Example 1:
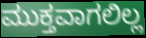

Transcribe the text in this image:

ಮುಕ್ತವಾಗಲಿಲ್ಲ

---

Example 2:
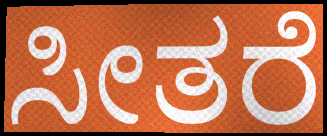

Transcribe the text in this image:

ಸೀತರೆ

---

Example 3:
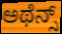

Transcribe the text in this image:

ಅಥೆನ್ಸ್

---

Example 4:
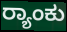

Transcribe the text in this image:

ರ್‍ಯಾಂಕು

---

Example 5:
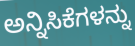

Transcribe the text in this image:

ಅನ್ನಿಸಿಕೆಗಳನ್ನು